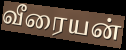
வீரையன்